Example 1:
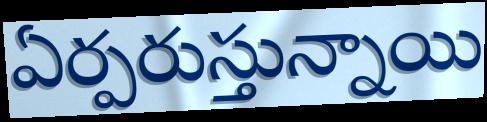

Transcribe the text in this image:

ఏర్పరుస్తున్నాయి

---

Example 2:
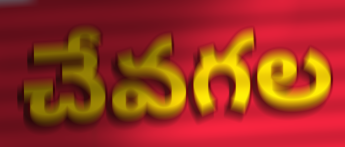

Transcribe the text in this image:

చేవగల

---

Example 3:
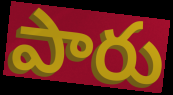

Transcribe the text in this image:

పారు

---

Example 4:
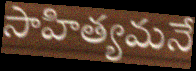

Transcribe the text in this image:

సాహిత్యమనే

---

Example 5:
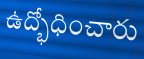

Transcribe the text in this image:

ఉద్భోధించారు